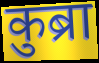
कुब्रा